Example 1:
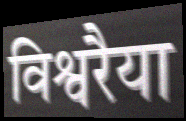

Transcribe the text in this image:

विश्वरैया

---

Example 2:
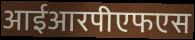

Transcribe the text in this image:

आईआरपीएफएस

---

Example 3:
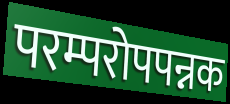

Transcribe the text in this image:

परम्परोपपन्नक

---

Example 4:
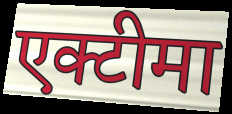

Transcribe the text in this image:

एक्टीमा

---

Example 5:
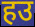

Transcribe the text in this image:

हउ